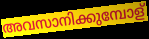
അവസാനിക്കുമ്പോള്